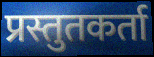
प्रस्तुतकर्ता